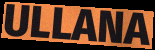
ULLANA